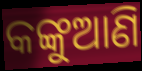
କଙ୍କୁଆଣି